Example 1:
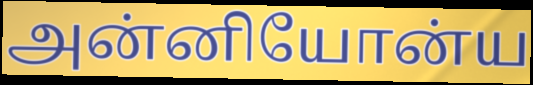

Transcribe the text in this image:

அன்னியோன்ய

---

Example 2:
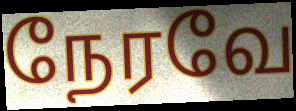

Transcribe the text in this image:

நேரவே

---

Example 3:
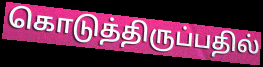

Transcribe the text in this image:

கொடுத்திருப்பதில்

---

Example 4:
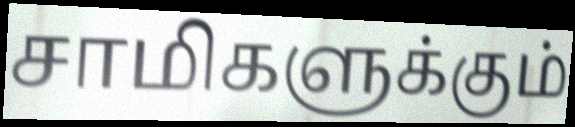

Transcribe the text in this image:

சாமிகளுக்கும்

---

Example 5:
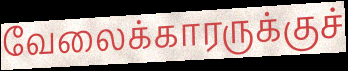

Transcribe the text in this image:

வேலைக்காரருக்குச்